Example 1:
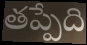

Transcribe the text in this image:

తప్పేది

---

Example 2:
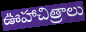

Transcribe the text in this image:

ఊహాచిత్రాలు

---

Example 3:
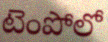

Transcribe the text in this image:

టెంపోలో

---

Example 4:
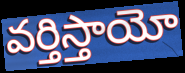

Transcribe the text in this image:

వర్తిస్తాయో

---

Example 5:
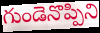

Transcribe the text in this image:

గుండెనొప్పిని